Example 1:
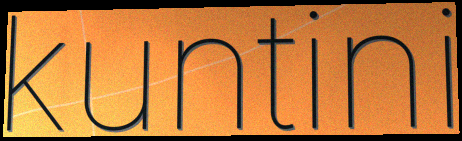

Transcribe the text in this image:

kuntini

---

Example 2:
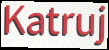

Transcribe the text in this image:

Katruj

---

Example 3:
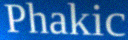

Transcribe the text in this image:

Phakic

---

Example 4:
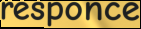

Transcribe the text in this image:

responce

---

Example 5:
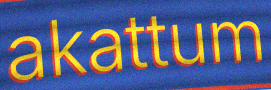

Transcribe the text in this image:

akattum